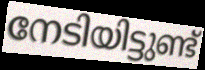
നേടിയിട്ടുണ്ട്